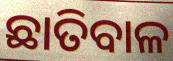
ଛାତିବାଳ